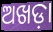
ଅଖଡ଼ା